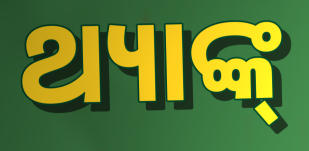
ଥ୍ୟାଙ୍କ୍